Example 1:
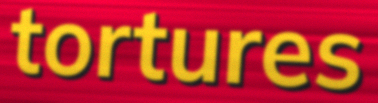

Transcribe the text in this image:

tortures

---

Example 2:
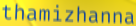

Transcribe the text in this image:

thamizhanna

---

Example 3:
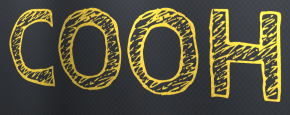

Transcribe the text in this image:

COOH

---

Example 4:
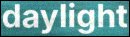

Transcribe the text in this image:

daylight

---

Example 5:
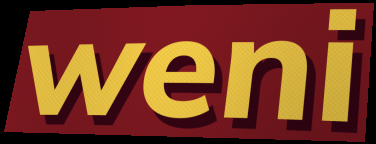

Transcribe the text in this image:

weni